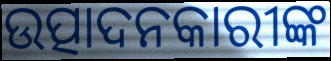
ଉତ୍ପାଦନକାରୀଙ୍କ